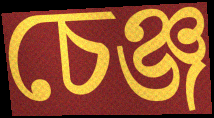
চেঞ্জ